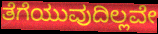
ತೆಗೆಯುವುದಿಲ್ಲವೇ